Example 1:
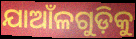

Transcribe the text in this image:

ଯାଆଁଳଗୁଡ଼ିକୁ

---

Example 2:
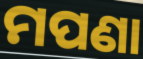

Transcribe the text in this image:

ମପଣା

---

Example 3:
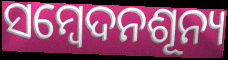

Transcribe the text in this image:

ସମ୍ବେଦନଶୂନ୍ୟ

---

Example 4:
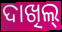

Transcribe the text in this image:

ଦାଖିଲ୍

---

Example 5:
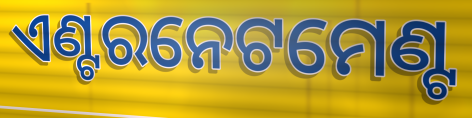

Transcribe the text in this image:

ଏଣ୍ଟରନେଟମେଣ୍ଟ